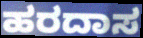
ಹರದಾಸ